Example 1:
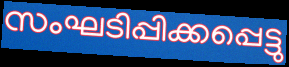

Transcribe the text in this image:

സംഘടിപ്പിക്കപ്പെട്ടു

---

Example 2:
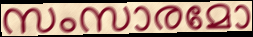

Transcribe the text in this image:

സംസാരമോ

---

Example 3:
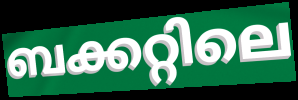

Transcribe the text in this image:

ബക്കറ്റിലെ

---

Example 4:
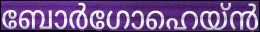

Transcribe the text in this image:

ബോർഗോഹെയ്ൻ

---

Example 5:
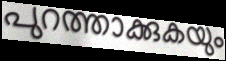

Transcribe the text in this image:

പുറത്താക്കുകയും